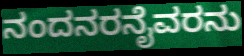
ನಂದನರನೈವರನು